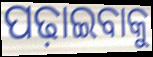
ପଢ଼ାଇବାକୁ